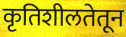
कृतिशीलतेतून